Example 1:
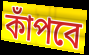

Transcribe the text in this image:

কাঁপবে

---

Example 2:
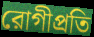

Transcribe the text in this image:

রোগীপ্রতি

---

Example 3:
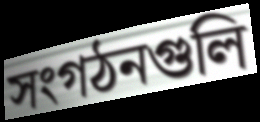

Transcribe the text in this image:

সংগঠনগুলি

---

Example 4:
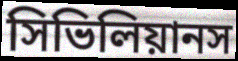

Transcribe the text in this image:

সিভিলিয়ানস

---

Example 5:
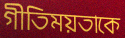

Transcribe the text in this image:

গীতিময়তাকে